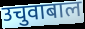
उचुवाबाल